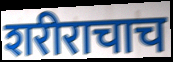
शरीराचाच